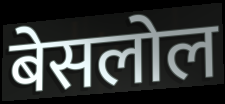
बेसलोल